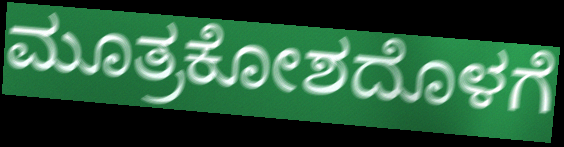
ಮೂತ್ರಕೋಶದೊಳಗೆ